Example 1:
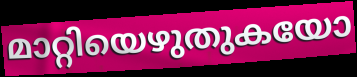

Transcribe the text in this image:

മാറ്റിയെഴുതുകയോ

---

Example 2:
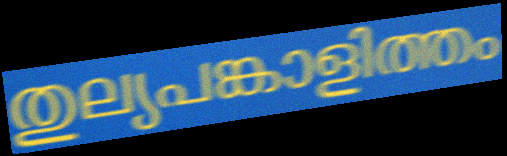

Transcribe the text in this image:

തുല്യപങ്കാളിത്തം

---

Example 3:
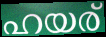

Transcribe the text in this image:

ഹയര്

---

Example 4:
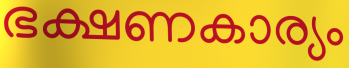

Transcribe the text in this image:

ഭക്ഷണകാര്യം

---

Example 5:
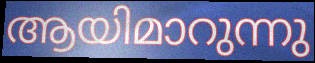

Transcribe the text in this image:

ആയിമാറുന്നു